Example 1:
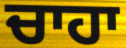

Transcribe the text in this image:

ਚਾਹਾ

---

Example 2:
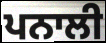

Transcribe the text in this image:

ਪਨਾਲੀ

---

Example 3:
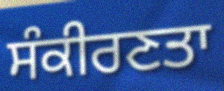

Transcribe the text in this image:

ਸੰਕੀਰਣਤਾ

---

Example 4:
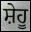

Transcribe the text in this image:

ਸ਼ੇਹੂ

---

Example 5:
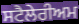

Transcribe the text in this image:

ਸਟੈਲੇਰੀਅਮ